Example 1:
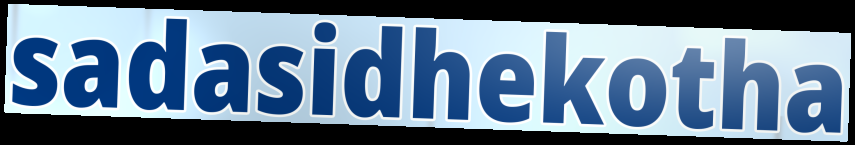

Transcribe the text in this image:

sadasidhekotha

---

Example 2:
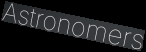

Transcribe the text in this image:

Astronomers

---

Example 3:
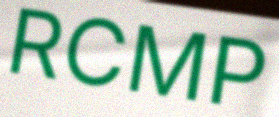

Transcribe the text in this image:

RCMP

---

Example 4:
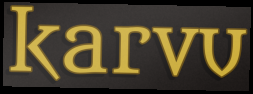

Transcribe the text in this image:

karvu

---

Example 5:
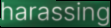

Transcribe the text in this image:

harassing